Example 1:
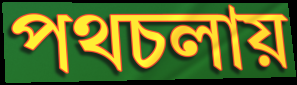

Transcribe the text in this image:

পথচলায়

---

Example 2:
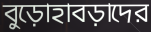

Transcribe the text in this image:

বুড়োহাবড়াদের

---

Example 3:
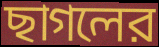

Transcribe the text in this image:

ছাগলের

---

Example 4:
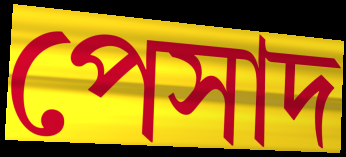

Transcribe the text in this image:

পেসাদ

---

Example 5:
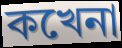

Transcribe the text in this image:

কখেনা